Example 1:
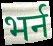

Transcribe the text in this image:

भर्न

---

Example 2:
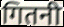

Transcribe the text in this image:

गितनी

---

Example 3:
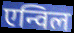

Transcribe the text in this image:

एन्विल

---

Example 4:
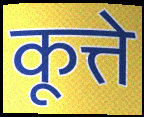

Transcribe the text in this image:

कूत्ते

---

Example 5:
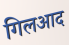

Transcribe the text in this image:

गिलआद